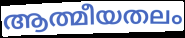
ആത്മീയതലം